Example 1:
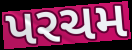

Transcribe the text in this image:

પરચમ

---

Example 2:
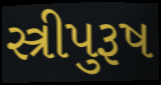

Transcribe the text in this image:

સ્ત્રીપુરૂષ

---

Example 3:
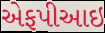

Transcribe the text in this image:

એફપીઆઇ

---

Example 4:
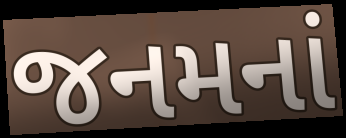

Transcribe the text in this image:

જનમનાં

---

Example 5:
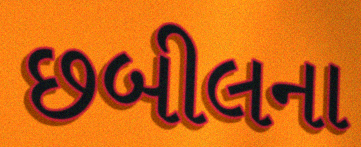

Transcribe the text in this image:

છબીલના